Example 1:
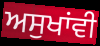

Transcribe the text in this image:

ਅਸੁਖਾਂਵੀ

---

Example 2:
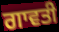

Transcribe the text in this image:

ਗਾਵਤੀ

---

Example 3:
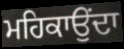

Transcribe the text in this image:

ਮਹਿਕਾਉਂਦਾ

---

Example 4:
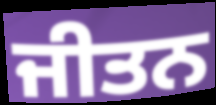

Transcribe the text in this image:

ਜੀਤਨ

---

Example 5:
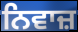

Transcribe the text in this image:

ਨਿਵਾਜ਼